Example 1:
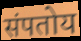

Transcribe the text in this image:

संपतोय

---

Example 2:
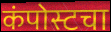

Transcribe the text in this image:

कंपोस्टचा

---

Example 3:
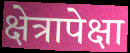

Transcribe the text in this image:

क्षेत्रापेक्षा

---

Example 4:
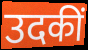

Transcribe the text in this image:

उदकीं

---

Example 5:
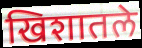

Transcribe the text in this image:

खिशातले